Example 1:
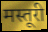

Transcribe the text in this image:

मस्तूरी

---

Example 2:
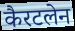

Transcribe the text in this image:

कैरटलेन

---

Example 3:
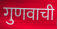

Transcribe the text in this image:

गुणवाची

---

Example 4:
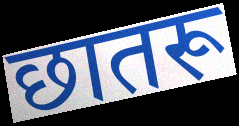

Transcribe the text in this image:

छातरू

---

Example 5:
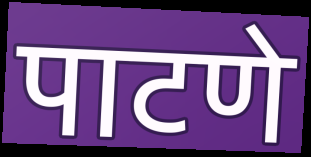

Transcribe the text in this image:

पाटणे